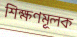
শিক্ষণমূলক